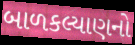
બાળકલ્યાણનો